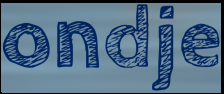
ondje